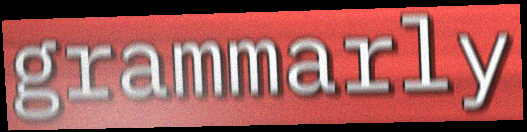
grammarly